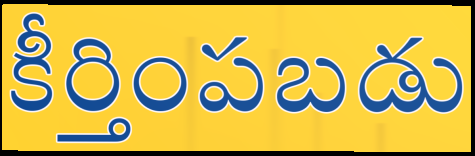
కీర్తింపబడు